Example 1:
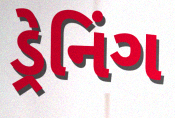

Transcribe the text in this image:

ડ્રેનિંગ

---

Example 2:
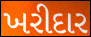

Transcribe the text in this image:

ખરીદાર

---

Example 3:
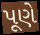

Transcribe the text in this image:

પૂણે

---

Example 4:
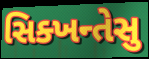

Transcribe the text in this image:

સિક્ખન્તેસુ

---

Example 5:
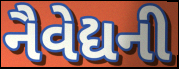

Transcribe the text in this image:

નૈવેદ્યની